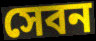
সেবন